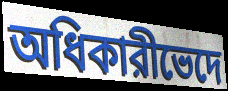
অধিকারীভেদে